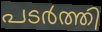
പടർത്തി